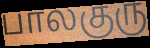
பாலகுரு